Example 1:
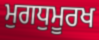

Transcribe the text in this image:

ਮੁਗਧੁਮੂਰਖ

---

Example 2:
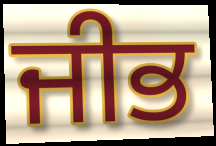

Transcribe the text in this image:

ਜੀਭ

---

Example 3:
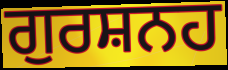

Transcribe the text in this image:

ਗੁਰਸ਼ਨਹ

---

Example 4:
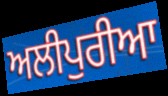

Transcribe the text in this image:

ਅਲੀਪੁਰੀਆ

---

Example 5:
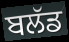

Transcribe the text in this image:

ਬਲੱਡ